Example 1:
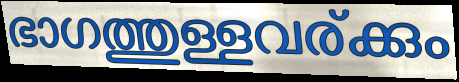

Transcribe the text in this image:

ഭാഗത്തുള്ളവര്ക്കും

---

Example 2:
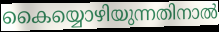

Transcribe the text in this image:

കൈയ്യൊഴിയുന്നതിനാൽ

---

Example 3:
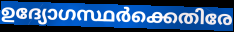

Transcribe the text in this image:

ഉദ്യോഗസ്ഥർക്കെതിരേ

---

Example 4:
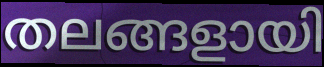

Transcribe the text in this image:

തലങ്ങളായി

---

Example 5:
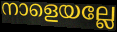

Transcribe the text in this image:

നാളെയല്ലേ